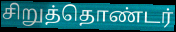
சிறுத்தொண்டர்